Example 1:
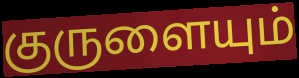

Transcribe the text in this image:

குருளையும்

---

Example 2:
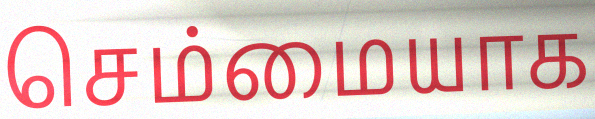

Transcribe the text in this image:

செம்மையாக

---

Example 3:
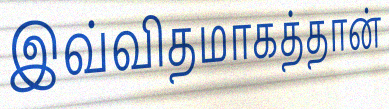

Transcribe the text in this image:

இவ்விதமாகத்தான்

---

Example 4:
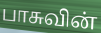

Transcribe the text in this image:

பாசுவின்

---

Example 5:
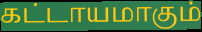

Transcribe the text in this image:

கட்டாயமாகும்